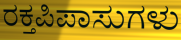
ರಕ್ತಪಿಪಾಸುಗಳು